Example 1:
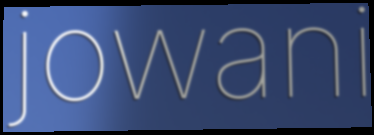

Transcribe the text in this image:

jowani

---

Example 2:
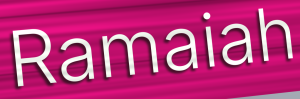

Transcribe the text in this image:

Ramaiah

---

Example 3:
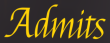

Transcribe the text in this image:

Admits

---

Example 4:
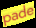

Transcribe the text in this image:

pade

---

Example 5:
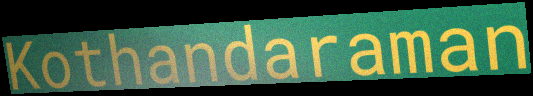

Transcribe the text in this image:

Kothandaraman